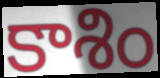
కాశిం